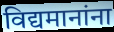
विद्यमानांना